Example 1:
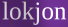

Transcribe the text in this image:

lokjon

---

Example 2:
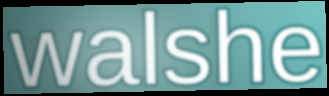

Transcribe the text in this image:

walshe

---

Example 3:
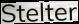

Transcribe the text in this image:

Stelter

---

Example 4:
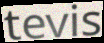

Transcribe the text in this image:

tevis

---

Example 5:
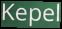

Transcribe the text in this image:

Kepel